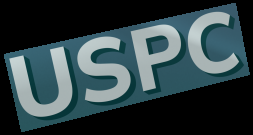
USPC